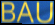
BAU